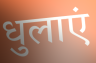
धुलाएं